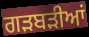
ਗੜਬੜੀਆਂ